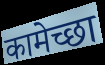
कामेच्छा